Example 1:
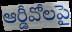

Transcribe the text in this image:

ఆర్డీవోలపై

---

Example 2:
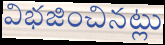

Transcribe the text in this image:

విభజించినట్లు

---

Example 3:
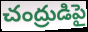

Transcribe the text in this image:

చంద్రుడిపై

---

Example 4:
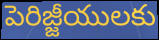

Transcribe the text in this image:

పెరిజ్జీయులకు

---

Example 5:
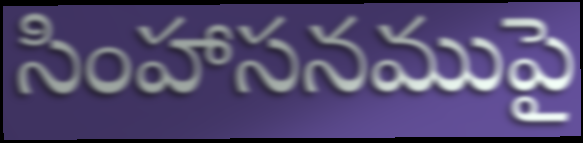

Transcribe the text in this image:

సింహాసనముపై